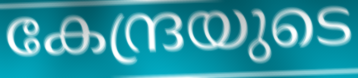
കേന്ദ്രയുടെ